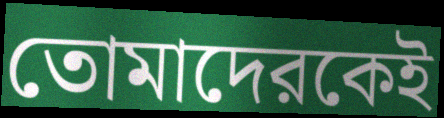
তোমাদেরকেই